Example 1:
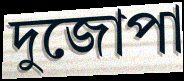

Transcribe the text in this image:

দুজোপা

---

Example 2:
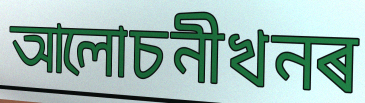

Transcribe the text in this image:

আলোচনীখনৰ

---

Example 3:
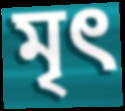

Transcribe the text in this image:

মৃৎ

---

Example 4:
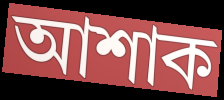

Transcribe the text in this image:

আশাক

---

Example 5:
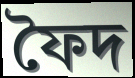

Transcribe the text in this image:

ফৈদ